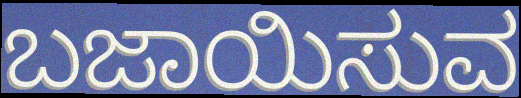
ಬಜಾಯಿಸುವ